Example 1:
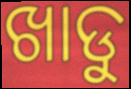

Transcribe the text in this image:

ଖାଡୁ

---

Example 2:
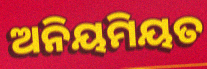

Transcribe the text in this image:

ଅନିୟମିୟତ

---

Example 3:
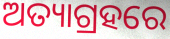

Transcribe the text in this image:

ଅତ୍ୟାଗ୍ରହରେ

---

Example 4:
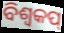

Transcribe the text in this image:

ବିଶ୍ବକପ୍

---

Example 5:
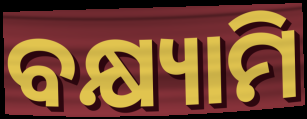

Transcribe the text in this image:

ବକ୍ଷ୍ୟାମି